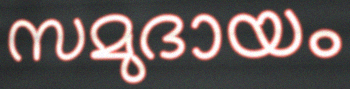
സമുദായം